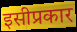
इसीप्रकार